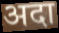
अदा